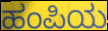
ಹಂಪಿಯ